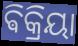
ଵିକ୍ରିୟା